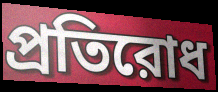
প্রতিরোধ